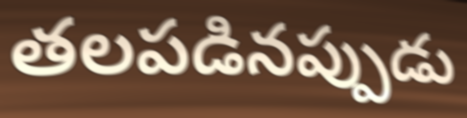
తలపడినప్పుడు